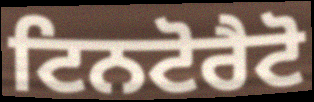
ਟਿਨਟੋਰੈਟੋ